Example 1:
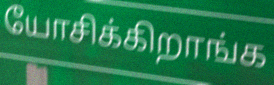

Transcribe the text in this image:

யோசிக்கிறாங்க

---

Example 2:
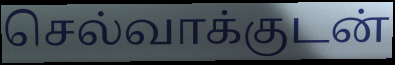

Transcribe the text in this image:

செல்வாக்குடன்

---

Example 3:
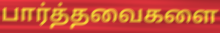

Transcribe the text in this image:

பார்த்தவைகளை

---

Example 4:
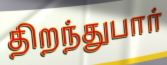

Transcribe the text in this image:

திறந்துபார்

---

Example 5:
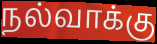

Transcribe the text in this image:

நல்வாக்கு